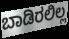
ಬಾಡಿರಲಿಲ್ಲ